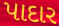
પાદાર